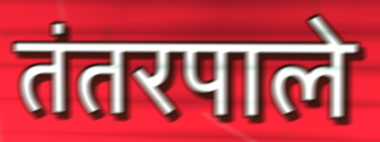
तंतरपाले